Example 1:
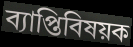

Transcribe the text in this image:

ব্যাপ্তিবিষয়ক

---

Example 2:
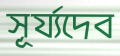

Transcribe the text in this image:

সূর্য্যদেব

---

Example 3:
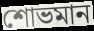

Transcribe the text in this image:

শোভমান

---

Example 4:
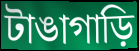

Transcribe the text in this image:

টাঙাগাড়ি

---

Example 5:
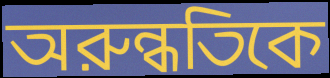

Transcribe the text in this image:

অরুন্ধতিকে